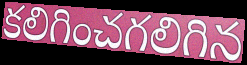
కలిగించగలిగిన